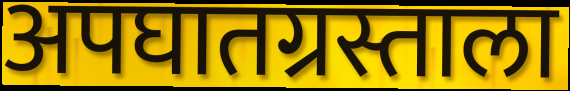
अपघातग्रस्ताला